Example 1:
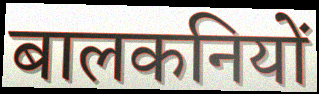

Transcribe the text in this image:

बालकनियों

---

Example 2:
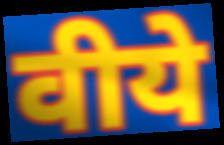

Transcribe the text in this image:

वीये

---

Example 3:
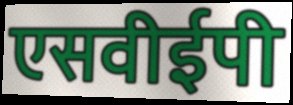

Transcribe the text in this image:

एसवीईपी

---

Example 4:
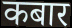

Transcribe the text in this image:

कबार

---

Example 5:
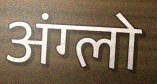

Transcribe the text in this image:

अंग्लो